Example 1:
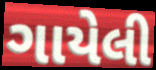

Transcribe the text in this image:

ગાયેલી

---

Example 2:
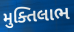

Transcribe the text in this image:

મુક્તિલાભ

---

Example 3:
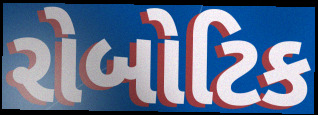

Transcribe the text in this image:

રોબોટિક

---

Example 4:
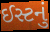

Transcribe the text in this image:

ઈસ્ટનું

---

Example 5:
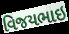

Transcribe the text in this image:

વિજયભાઇ